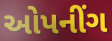
ઓપનીંગ